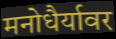
मनोधैर्यावर